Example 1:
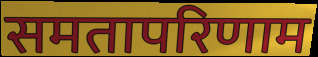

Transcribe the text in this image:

समतापरिणाम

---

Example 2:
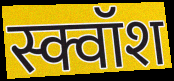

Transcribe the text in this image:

स्क्वॉश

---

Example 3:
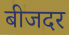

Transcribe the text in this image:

बीजदर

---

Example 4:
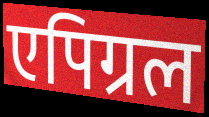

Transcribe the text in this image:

एपिग्रल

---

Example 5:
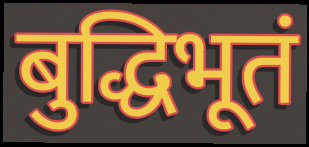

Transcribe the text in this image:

बुद्धिभूतं